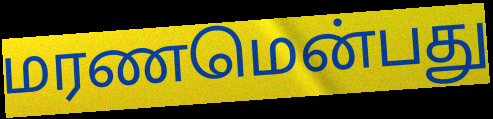
மரணமென்பது